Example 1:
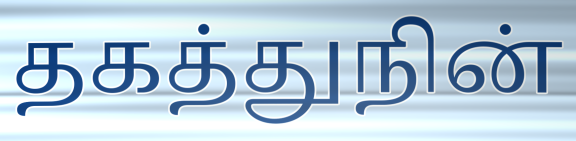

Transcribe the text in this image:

தகத்துநின்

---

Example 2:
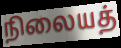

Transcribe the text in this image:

நிலையத்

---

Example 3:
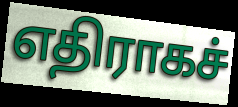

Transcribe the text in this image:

எதிராகச்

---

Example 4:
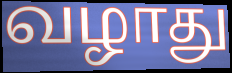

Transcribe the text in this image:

வழாது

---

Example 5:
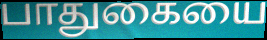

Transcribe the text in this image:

பாதுகையை